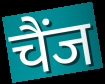
चैंज